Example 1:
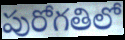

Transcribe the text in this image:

పురోగతిలో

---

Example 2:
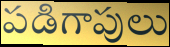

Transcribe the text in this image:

పడిగాపులు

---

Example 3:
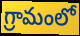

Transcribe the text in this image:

గ్రామంలో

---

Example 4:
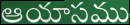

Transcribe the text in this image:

ఆయాసము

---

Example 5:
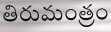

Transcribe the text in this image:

తిరుమంత్రం